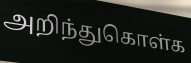
அறிந்துகொள்க